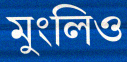
মুংলিও